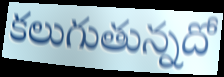
కలుగుతున్నదో